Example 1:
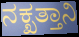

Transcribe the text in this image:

ನಕ್ಖತ್ತಾನಿ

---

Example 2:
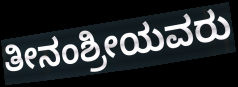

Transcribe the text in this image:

ತೀನಂಶ್ರೀಯವರು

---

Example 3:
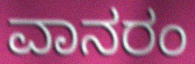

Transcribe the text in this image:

ವಾನರಂ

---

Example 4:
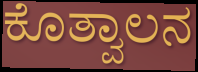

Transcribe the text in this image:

ಕೊತ್ವಾಲನ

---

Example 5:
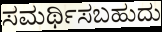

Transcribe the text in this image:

ಸಮರ್ಥಿಸಬಹುದು